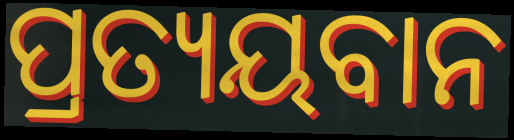
ପ୍ରତ୍ୟୟବାନ